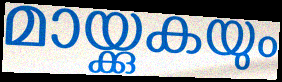
മായ്ക്കുകയും